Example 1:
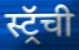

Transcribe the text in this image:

स्ट्रॅची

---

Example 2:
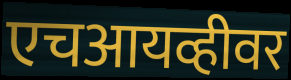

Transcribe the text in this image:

एचआयव्हीवर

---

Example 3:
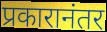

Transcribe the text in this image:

प्रकारानंतर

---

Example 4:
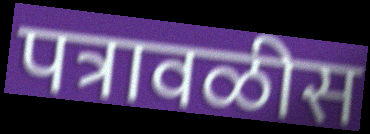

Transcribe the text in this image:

पत्रावळीस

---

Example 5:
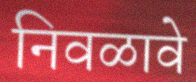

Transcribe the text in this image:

निवळावे